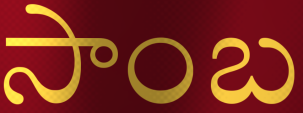
సాంబ